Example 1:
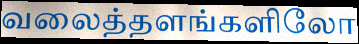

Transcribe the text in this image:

வலைத்தளங்களிலோ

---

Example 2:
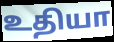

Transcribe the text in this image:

உதியா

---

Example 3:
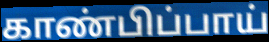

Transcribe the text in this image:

காண்பிப்பாய்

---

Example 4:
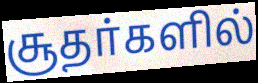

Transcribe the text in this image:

சூதர்களில்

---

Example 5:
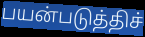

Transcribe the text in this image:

பயன்படுத்திச்